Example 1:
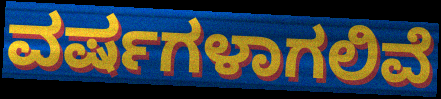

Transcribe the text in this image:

ವರ್ಷಗಳಾಗಲಿವೆ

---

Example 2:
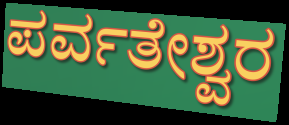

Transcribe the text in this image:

ಪರ್ವತೇಶ್ವರ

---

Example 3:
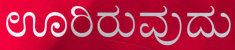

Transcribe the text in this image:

ಊರಿರುವುದು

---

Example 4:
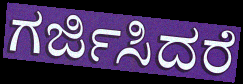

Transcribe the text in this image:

ಗರ್ಜಿಸಿದರೆ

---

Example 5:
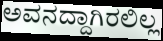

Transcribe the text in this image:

ಅವನದ್ದಾಗಿರಲಿಲ್ಲ